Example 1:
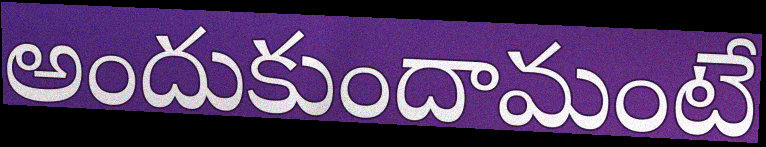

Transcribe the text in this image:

అందుకుందామంటే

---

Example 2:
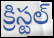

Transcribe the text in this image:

క్రిస్టల్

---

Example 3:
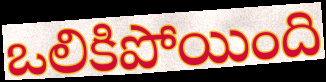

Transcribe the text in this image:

ఒలికిపోయింది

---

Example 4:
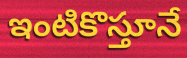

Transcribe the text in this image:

ఇంటికొస్తూనే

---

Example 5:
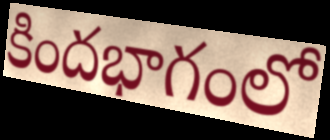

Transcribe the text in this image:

కిందభాగంలో